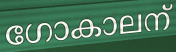
ഗോകാലന്